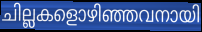
ചില്ലകളൊഴിഞ്ഞവനായി